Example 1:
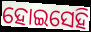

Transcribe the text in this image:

ହୋଇସେହି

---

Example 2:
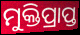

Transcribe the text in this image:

ମୁକ୍ତିପ୍ରାପ୍ତ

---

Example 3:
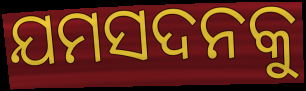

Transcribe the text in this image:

ଯମସଦନକୁ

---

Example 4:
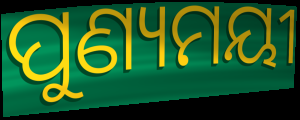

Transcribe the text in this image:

ପୁଣ୍ୟମୟୀ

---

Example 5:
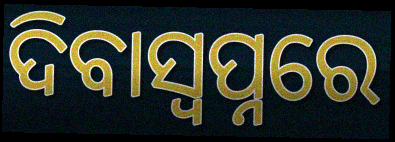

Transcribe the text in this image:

ଦିବାସ୍ବପ୍ନରେ